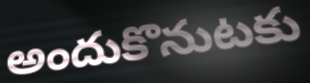
అందుకొనుటకు